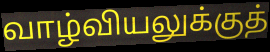
வாழ்வியலுக்குத்